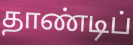
தாண்டிப்